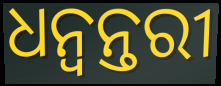
ଧନ୍ବନ୍ତରୀ